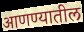
आणण्यातील